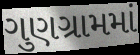
ગુણગ્રામમાં